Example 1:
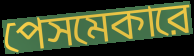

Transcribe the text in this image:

পেসমেকারে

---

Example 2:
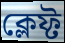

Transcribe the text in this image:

ক্লেফ্ট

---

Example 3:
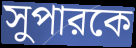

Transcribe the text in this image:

সুপারকে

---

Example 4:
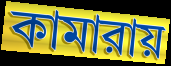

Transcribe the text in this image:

কামারায়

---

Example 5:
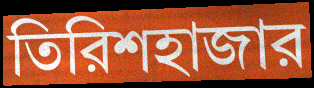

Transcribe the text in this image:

তিরিশহাজার